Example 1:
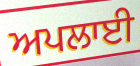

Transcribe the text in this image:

ਅਪਲਾਈ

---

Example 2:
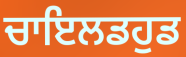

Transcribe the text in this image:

ਚਾਇਲਡਹੁਡ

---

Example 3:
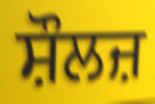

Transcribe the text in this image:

ਸ਼ੌਲਜ਼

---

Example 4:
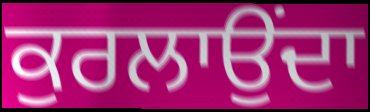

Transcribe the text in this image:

ਕੁਰਲਾਉਂਦਾ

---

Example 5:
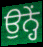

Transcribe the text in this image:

ਉਨ੍ਹੇਂ